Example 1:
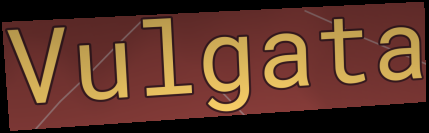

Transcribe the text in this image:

Vulgata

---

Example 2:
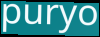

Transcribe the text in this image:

puryo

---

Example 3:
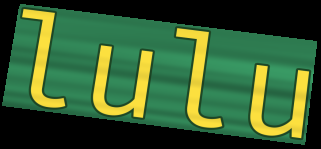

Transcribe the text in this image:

lulu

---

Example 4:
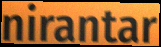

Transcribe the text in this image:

nirantar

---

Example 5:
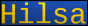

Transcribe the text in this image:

Hilsa